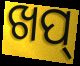
ଖପ୍